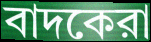
বাদকেরা